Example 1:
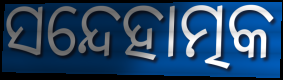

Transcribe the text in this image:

ସନ୍ଦେହାତ୍ମକ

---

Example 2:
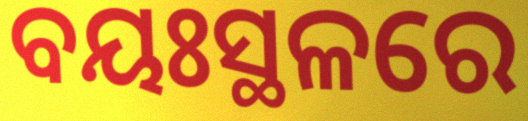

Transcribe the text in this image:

ବୟଃସ୍ଥଳରେ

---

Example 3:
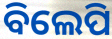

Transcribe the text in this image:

ବିଲେପି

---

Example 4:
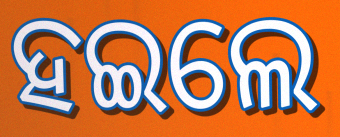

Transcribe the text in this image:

ହଇଲେ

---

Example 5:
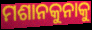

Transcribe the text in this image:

ମଶାନକୁନାକୁ